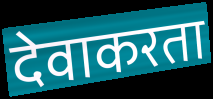
देवाकरता